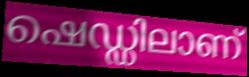
ഷെഡ്ഡിലാണ്